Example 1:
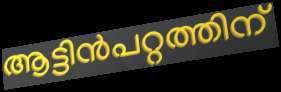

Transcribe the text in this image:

ആട്ടിൻപറ്റത്തിന്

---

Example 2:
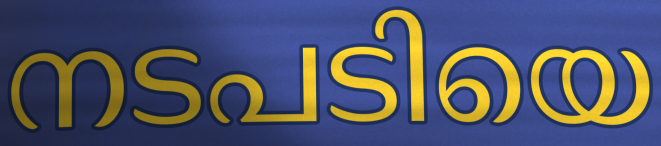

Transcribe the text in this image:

നടപടിയെ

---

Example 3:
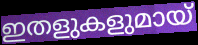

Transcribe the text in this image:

ഇതളുകളുമായ്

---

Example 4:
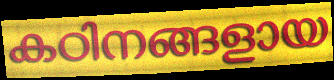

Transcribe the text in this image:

കഠിനങ്ങളായ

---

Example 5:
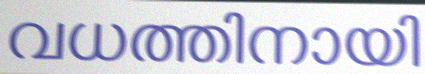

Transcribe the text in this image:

വധത്തിനായി